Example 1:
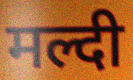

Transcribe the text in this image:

मल्दी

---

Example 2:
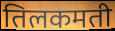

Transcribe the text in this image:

तिलकमती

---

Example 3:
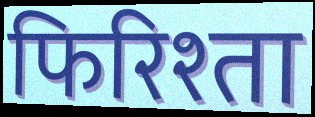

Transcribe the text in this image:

फिरिश्ता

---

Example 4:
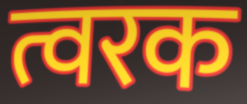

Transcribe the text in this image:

त्वरक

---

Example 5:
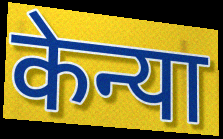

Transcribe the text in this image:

केन्या